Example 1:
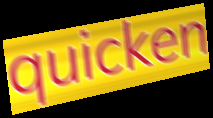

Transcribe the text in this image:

quicken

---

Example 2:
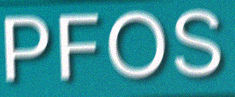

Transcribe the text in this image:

PFOS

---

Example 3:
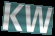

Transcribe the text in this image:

KW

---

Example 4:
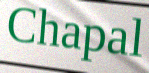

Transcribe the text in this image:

Chapal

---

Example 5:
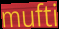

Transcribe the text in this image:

mufti